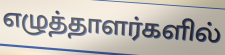
எழுத்தாளர்களில்